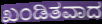
ಖಂಡಿತವಾದ